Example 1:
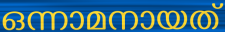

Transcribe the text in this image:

ഒന്നാമനായത്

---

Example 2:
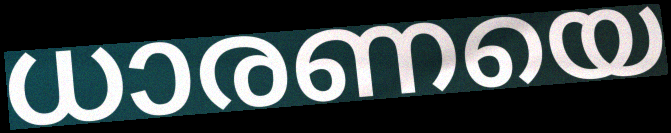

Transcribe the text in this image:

ധാരണയെ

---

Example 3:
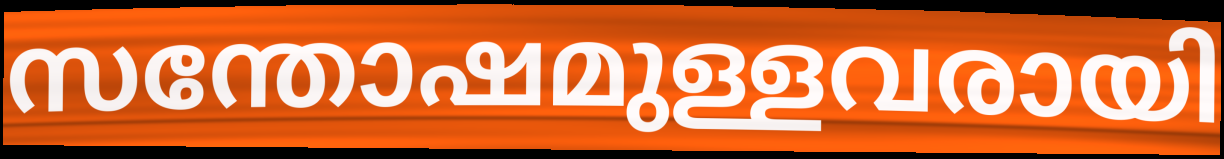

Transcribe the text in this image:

സന്തോഷമുള്ളവരായി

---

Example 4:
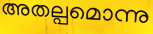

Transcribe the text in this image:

അതല്പമൊന്നു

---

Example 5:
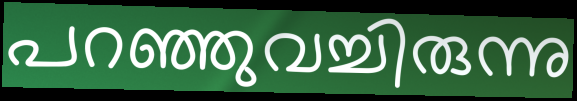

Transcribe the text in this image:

പറഞ്ഞുവച്ചിരുന്നു